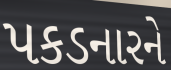
પકડનારને